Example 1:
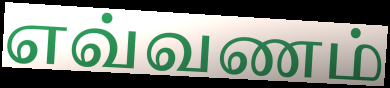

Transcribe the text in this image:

எவ்வணம்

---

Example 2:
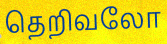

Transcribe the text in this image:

தெறிவலோ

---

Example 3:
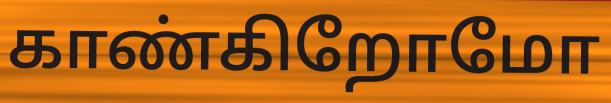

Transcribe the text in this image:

காண்கிறோமோ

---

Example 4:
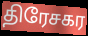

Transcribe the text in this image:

திரேசகர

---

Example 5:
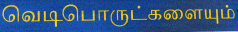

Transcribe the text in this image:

வெடிபொருட்களையும்